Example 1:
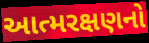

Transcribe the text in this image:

આત્મરક્ષણનો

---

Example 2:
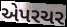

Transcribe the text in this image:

એપરચર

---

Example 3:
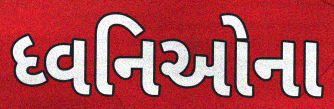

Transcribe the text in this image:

ધ્વનિઓના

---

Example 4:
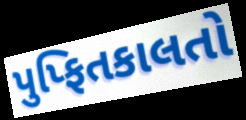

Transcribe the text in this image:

પુપ્ફિતકાલતો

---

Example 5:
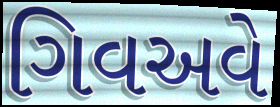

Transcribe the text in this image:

ગિવઅવે